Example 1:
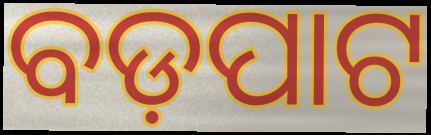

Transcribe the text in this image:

ବଡ଼ପାଟ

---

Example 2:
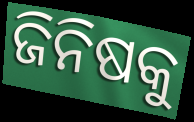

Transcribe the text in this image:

ଜିନିଷକୁ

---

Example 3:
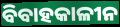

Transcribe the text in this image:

ବିବାହକାଳୀନ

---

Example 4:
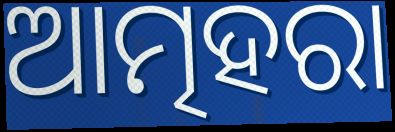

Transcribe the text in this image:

ଆତ୍ମହରା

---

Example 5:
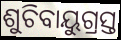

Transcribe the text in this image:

ଶୁଚିବାୟୁଗ୍ରସ୍ତ